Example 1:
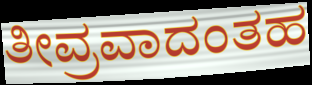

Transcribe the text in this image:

ತೀವ್ರವಾದಂತಹ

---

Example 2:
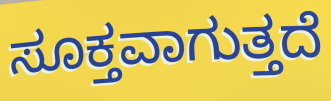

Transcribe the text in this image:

ಸೂಕ್ತವಾಗುತ್ತದೆ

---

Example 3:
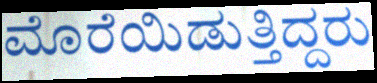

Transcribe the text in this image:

ಮೊರೆಯಿಡುತ್ತಿದ್ದರು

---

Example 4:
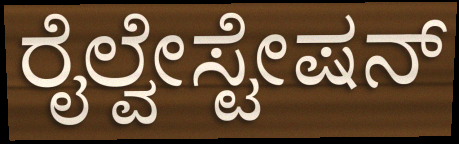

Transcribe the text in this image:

ರೈಲ್ವೇಸ್ಟೇಷನ್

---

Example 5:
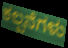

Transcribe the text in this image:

ಕಲ್ಪನೆಗಳು